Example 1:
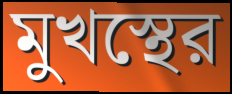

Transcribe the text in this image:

মুখস্থের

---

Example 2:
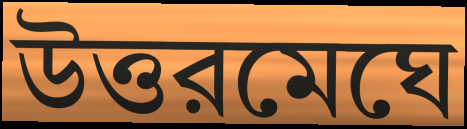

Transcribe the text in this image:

উত্তরমেঘে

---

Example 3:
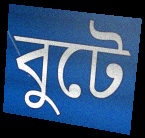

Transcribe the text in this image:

বুটে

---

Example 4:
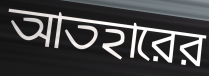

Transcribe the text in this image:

আতহারের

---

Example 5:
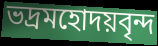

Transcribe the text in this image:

ভদ্রমহোদয়বৃন্দ